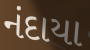
નંદાયા